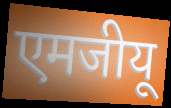
एमजीयू